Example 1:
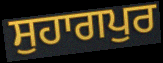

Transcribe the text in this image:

ਸੁਹਾਗਪੁਰ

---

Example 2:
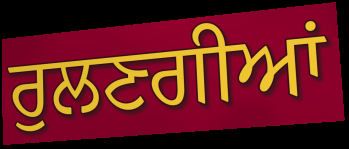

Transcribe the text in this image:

ਰੁਲਣਗੀਆਂ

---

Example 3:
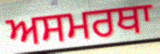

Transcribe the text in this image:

ਅਸਮਰਥਾ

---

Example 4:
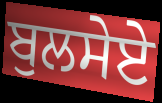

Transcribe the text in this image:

ਬੁਲਸੇਏ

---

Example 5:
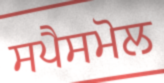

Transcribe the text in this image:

ਸਪੈਸਮੋਲ